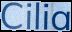
Cilia